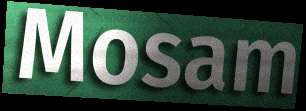
Mosam